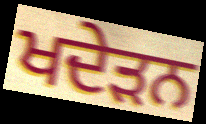
ਖਦੇੜਨ